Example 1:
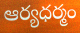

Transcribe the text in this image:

ఆర్యధర్మం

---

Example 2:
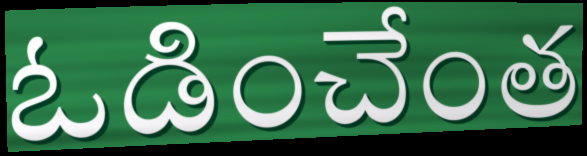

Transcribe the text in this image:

ఓడించేంత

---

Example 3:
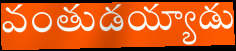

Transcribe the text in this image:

వంతుడయ్యాడు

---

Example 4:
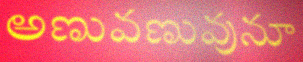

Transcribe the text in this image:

అణువణువునూ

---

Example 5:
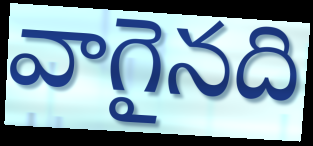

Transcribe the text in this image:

వాగైనది